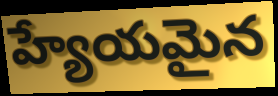
హ్యేయమైన